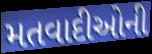
મતવાદીઓની